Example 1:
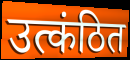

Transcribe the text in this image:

उत्कंठित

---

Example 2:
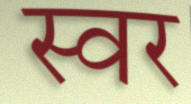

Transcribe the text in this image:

स्वर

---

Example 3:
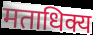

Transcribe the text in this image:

मताधिक्य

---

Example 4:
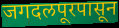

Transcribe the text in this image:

जगदलपूरपासून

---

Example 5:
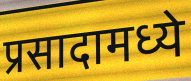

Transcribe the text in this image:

प्रसादामध्ये